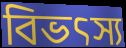
বিভৎস্য